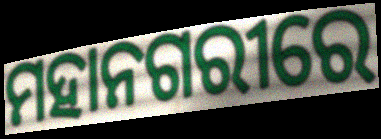
ମହାନଗରୀରେ